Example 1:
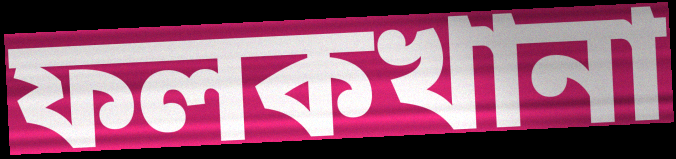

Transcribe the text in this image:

ফলকখানা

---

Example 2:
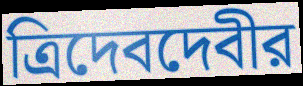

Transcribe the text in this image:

ত্রিদেবদেবীর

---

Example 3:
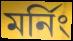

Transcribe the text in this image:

মর্নিং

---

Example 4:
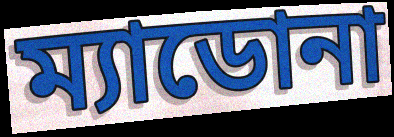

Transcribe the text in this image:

ম্যাডোনা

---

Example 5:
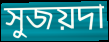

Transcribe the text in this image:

সুজয়দা